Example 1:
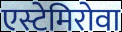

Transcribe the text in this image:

एस्टेमिरोवा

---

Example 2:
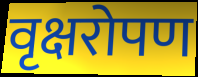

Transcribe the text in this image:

वृक्षरोपण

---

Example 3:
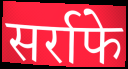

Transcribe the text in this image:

सर्राफे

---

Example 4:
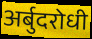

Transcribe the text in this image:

अर्बुदरोधी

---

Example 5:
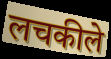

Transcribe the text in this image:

लचकीले